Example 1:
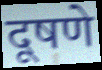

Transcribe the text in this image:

दूषणे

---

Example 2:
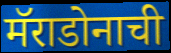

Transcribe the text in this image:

मॅराडोनाची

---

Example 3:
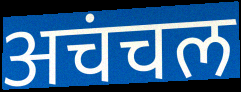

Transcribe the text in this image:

अचंचल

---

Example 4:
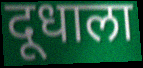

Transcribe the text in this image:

दूधाला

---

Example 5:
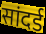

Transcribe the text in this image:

सांदर्ड